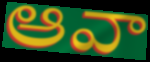
ఆవా